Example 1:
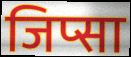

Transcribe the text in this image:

जिप्सा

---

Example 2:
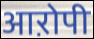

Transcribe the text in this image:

आऱोपी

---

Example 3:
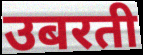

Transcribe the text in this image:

उबरती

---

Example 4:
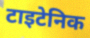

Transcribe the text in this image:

टाइटेनिक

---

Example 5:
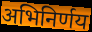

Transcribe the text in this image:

अभिनिर्णय